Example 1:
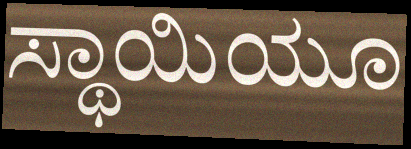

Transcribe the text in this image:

ಸ್ಥಾಯಿಯೂ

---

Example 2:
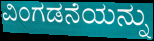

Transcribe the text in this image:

ವಿಂಗಡನೆಯನ್ನು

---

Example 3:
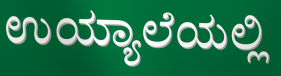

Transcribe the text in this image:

ಉಯ್ಯಾಲೆಯಲ್ಲಿ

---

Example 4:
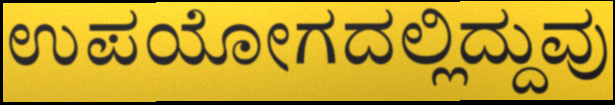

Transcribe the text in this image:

ಉಪಯೋಗದಲ್ಲಿದ್ದುವು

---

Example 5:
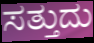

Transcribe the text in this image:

ಸತ್ತುದು